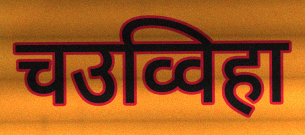
चउव्विहा